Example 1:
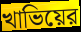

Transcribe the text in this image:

খাভিয়ের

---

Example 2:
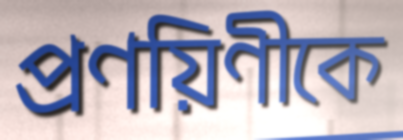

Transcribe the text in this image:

প্রণয়িণীকে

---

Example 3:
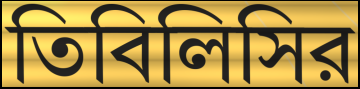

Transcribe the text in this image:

তিবিলিসির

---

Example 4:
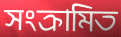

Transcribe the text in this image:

সংক্রামিত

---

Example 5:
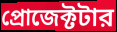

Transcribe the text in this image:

প্রোজেক্টটার